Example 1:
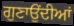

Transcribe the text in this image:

ਗੁਣਾਉਂਦੀਆਂ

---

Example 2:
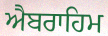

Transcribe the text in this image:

ਐਬਰਾਹਿਮ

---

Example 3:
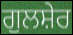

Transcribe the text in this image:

ਗੁਲਸ਼ੇਰ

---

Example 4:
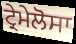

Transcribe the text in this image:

ਟ੍ਰੇਮੇਲੋਸਾ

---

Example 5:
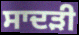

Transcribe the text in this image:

ਸਾਦੜੀ